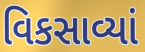
વિકસાવ્યાં